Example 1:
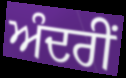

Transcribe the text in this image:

ਅੰਦਰੀਂ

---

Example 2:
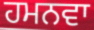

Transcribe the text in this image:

ਹਮਨਵਾ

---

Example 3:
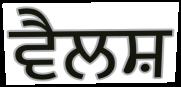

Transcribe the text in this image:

ਵੈਲਸ਼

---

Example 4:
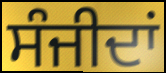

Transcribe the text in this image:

ਸੰਜੀਦਾਂ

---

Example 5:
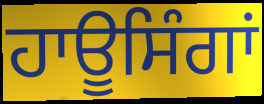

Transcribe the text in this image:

ਹਾਊਸਿੰਗਾਂ